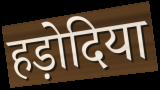
हड़ोदिया